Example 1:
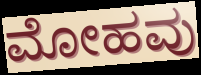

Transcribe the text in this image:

ಮೋಹವು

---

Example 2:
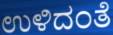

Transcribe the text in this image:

ಉಳಿದಂತೆ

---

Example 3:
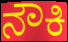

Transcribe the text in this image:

ನೌಕಿ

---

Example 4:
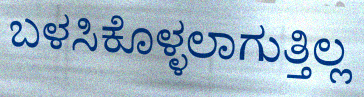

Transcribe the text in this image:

ಬಳಸಿಕೊಳ್ಳಲಾಗುತ್ತಿಲ್ಲ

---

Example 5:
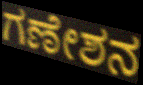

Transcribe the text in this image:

ಗಣೇಶನ